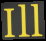
Ill